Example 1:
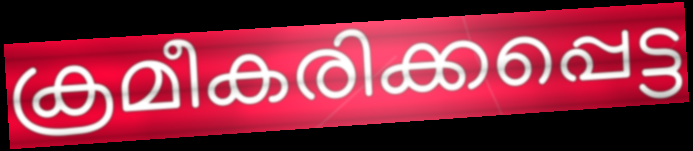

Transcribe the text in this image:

ക്രമീകരിക്കപ്പെട്ട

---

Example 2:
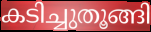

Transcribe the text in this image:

കടിച്ചുതൂങ്ങി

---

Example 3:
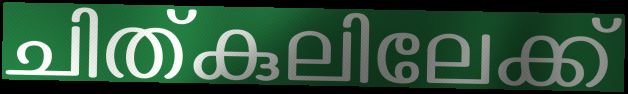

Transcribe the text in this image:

ചിത്കുലിലേക്ക്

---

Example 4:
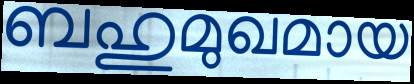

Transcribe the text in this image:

ബഹുമുഖമായ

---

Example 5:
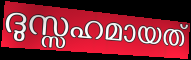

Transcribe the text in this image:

ദുസ്സഹമായത്